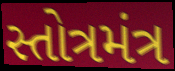
સ્તોત્રમંત્ર